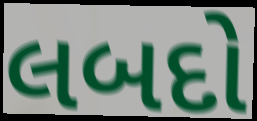
લબદો